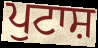
ਪੁਟਾਸ਼